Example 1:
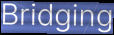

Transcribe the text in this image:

Bridging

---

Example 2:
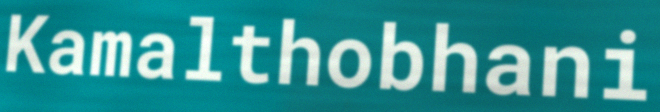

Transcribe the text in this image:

Kamalthobhani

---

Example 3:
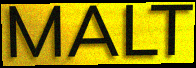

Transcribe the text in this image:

MALT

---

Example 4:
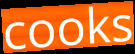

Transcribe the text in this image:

cooks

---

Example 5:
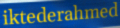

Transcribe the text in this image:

iktederahmed